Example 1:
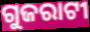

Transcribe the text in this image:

ଗୁଜରାଟୀ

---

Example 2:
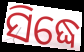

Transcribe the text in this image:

ସିଦ୍ଧେ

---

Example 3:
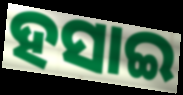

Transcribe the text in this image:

ହସାଇ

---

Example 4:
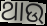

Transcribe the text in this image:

ଥାଉ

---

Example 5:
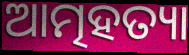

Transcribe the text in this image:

ଆତ୍ମହତ୍ୟା